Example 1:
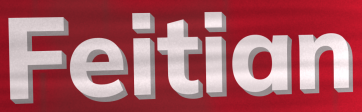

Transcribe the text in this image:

Feitian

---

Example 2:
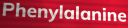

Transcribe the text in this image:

Phenylalanine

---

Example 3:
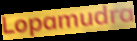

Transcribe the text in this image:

Lopamudra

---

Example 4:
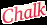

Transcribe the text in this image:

Chalk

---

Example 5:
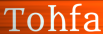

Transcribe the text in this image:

Tohfa